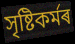
সৃষ্টিকৰ্মৰ